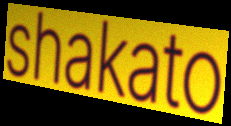
shakato